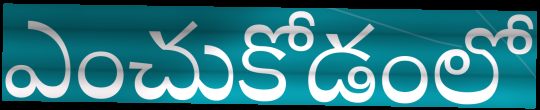
ఎంచుకోడంలో